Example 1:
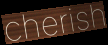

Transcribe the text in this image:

cherish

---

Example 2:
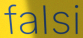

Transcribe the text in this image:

falsi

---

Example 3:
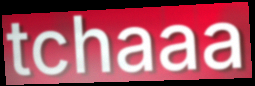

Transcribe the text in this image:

tchaaa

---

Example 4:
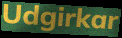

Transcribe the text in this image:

Udgirkar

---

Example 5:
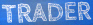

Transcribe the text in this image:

TRADER